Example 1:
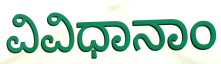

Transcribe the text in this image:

ವಿವಿಧಾನಾಂ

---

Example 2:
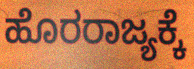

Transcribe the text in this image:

ಹೊರರಾಜ್ಯಕ್ಕೆ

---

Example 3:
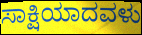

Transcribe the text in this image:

ಸಾಕ್ಷಿಯಾದವಳು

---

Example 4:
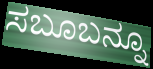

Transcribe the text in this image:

ಸಬೂಬನ್ನೂ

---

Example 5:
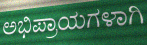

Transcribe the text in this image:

ಅಭಿಪ್ರಾಯಗಳಾಗಿ